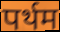
पर्थम